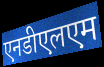
एनडीएलएम